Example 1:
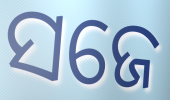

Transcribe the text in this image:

ସଜେ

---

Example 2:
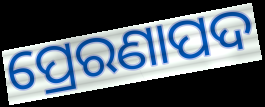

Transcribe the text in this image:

ପ୍ରେରଣାପଦ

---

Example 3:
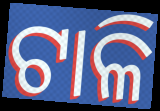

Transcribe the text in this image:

ଟାଳି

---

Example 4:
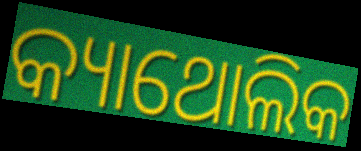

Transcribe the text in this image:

କ୍ୟାଥୋଲିକ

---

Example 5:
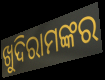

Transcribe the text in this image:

ଖୁଦିରାମଙ୍କର